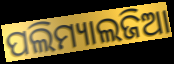
ପଲିମ୍ୟାଲଜିଆ